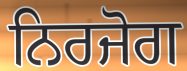
ਨਿਰਜੋਗ